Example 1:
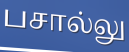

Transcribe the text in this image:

பசால்லு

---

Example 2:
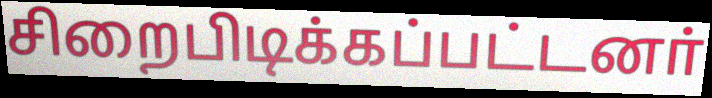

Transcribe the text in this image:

சிறைபிடிக்கப்பட்டனர்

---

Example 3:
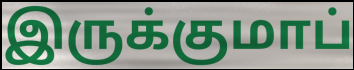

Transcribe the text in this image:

இருக்குமாப்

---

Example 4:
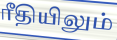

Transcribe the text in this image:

ரீதியிலும்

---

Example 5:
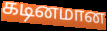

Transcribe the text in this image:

கடினமான